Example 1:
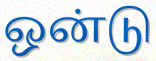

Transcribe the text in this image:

ஒன்டு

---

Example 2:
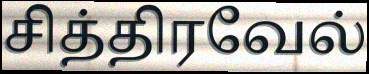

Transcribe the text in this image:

சித்திரவேல்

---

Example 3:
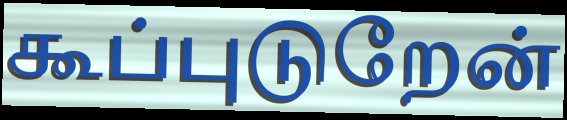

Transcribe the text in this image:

கூப்புடுறேன்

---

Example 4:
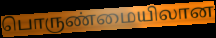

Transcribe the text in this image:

பொருண்மையிலான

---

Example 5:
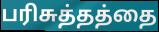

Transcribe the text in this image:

பரிசுத்தத்தை